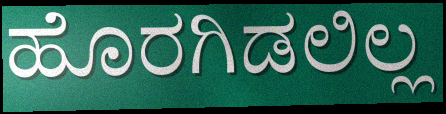
ಹೊರಗಿಡಲಿಲ್ಲ